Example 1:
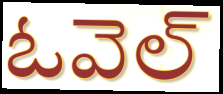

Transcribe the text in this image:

ఓవెల్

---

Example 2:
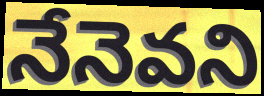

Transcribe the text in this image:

నేనెవని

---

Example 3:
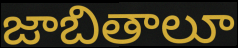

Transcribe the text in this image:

జాబితాలూ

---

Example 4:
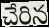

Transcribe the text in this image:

చేరిన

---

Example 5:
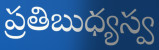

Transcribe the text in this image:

ప్రతిబుధ్యస్వ